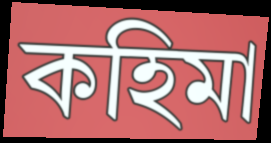
কহিমা